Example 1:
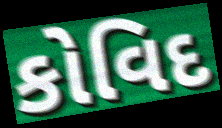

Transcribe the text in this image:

કોવિદ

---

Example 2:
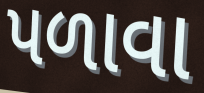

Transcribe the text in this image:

પળાવા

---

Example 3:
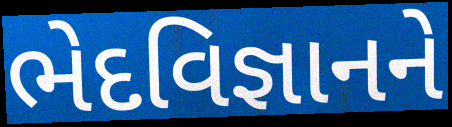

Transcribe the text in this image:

ભેદવિજ્ઞાનને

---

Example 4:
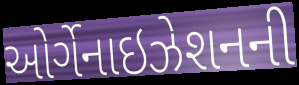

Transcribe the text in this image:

ઓર્ગેનાઇઝેશનની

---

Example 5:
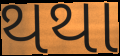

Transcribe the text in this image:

થથા